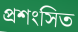
প্রশংসিত